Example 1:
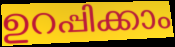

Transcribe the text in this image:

ഉറപ്പിക്കാം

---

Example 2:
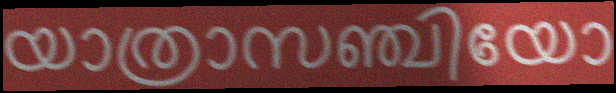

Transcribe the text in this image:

യാത്രാസഞ്ചിയോ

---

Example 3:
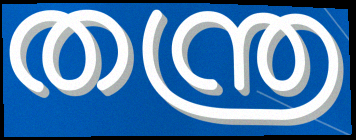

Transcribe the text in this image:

തന്ത്ര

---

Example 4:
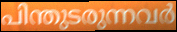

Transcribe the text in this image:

പിന്തുടരുന്നവർ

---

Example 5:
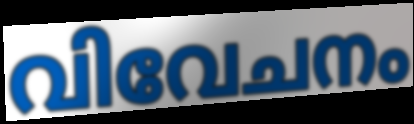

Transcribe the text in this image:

വിവേചനം